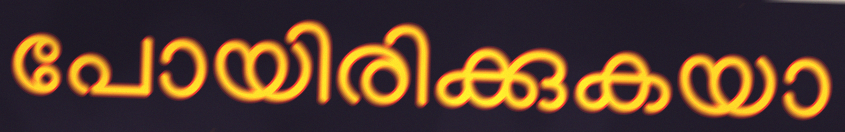
പോയിരിക്കുകയാ